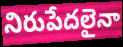
నిరుపేదలైనా